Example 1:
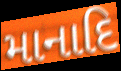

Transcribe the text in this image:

માનાદિ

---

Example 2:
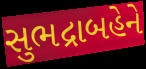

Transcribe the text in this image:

સુભદ્રાબહેને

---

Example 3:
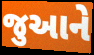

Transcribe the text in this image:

જુઆને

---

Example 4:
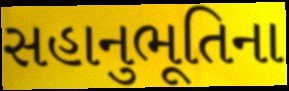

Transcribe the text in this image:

સહાનુભૂતિના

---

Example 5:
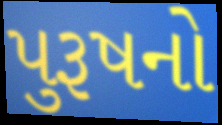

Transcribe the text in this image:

પુરૂષનો